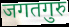
जगतगुरु